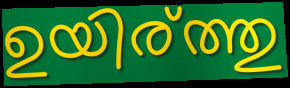
ഉയിര്ത്തു